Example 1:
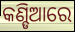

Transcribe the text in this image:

କଣ୍ଡିଆରେ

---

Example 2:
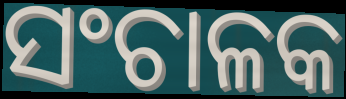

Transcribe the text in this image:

ସଂଚାଳକ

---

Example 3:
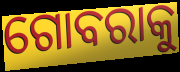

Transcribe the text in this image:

ଗୋବରାକୁ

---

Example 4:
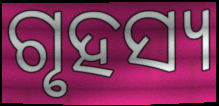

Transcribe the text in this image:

ଗୃହସ୍ୟ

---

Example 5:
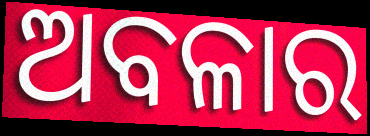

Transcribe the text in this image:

ଅବଳାର